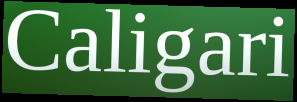
Caligari